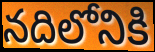
నదిలోనికి